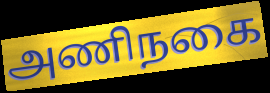
அணிநகை